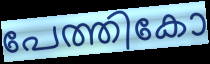
പേത്തികോ